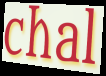
chal